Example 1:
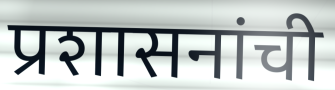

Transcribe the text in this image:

प्रशासनांची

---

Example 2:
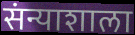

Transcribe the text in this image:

संन्याशाला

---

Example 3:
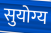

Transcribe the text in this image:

सुयोग्य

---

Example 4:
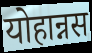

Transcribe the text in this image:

योहान्नस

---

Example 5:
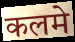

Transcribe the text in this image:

कलमे